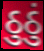
ઠુઠું